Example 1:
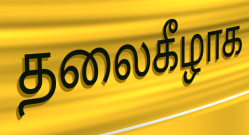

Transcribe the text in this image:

தலைகீழாக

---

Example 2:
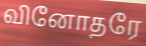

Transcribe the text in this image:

வினோதரே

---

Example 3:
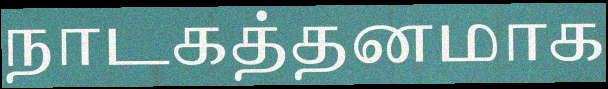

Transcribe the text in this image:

நாடகத்தனமாக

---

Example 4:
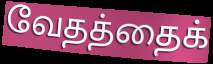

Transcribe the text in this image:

வேதத்தைக்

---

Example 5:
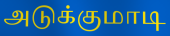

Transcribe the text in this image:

அடுக்குமாடி